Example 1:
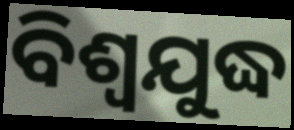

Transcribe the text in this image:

ବିଶ୍ୱଯୁଦ୍ଧ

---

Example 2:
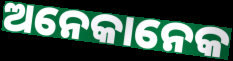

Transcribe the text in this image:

ଅନେକାନେକ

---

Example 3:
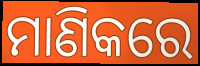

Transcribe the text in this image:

ମାଣିକରେ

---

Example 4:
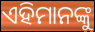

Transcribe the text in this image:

ଏହିମାନଙ୍କୁ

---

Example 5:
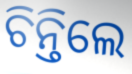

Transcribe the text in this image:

ଚିନ୍ତିଲେ